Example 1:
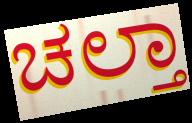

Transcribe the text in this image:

ಚಲ್ತಾ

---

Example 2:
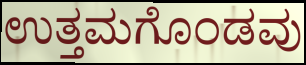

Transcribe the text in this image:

ಉತ್ತಮಗೊಂಡವು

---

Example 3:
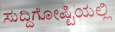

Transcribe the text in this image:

ಸುದ್ದಿಗೋಷ್ಟಿಯಲ್ಲಿ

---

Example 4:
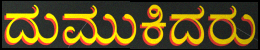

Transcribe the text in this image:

ದುಮುಕಿದರು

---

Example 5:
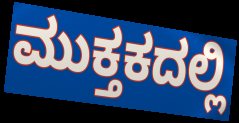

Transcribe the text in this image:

ಮುಕ್ತಕದಲ್ಲಿ